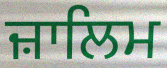
ਜ਼ਾਲਿਮ